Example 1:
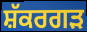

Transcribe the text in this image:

ਸ਼ੱਕਰਗੜ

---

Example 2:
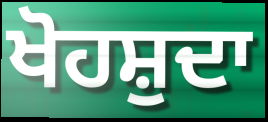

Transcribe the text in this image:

ਖੋਹਸ਼ੁਦਾ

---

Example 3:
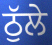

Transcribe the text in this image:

ਠੁੱਲੇ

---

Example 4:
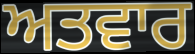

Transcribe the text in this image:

ਅਤਵਾਰ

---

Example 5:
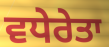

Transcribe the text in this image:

ਵਧੇਰੇਤਾ